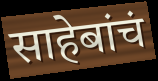
साहेबांचं